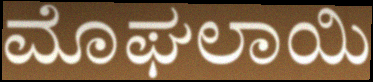
ಮೊಘಲಾಯಿ